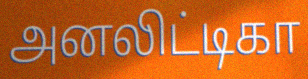
அனலிட்டிகா